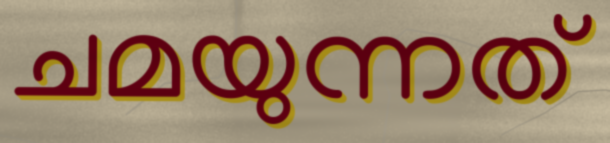
ചമയുന്നത്